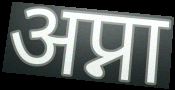
अप्ना